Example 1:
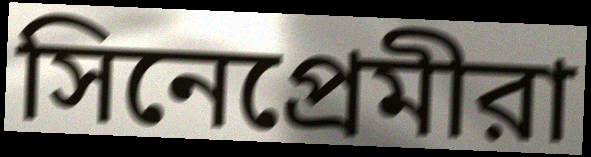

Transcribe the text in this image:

সিনেপ্রেমীরা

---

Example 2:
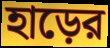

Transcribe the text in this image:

হাড়ের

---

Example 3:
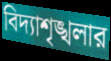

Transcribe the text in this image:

বিদ্যাশৃঙ্খলার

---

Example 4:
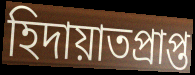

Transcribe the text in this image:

হিদায়াতপ্রাপ্ত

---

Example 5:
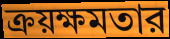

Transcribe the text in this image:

ক্রয়ক্ষমতার